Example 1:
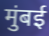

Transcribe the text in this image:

मुंबई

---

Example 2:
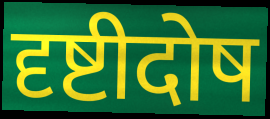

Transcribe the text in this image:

दृष्टीदोष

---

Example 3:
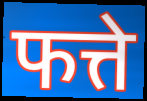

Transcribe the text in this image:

फत्ते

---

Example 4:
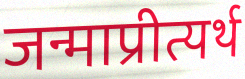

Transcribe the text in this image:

जन्माप्रीत्यर्थ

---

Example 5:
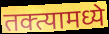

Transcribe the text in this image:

तक्‍त्यामध्ये